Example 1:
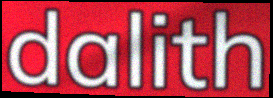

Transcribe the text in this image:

dalith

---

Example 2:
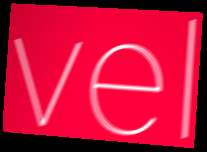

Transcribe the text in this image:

vel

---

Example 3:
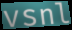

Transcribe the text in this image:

vsnl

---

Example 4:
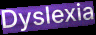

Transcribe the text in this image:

Dyslexia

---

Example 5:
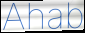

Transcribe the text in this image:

Ahab